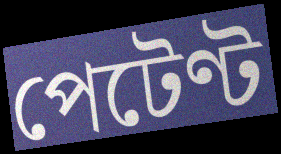
পেটেণ্ট